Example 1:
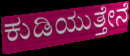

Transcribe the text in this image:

ಕುಡಿಯುತ್ತೇನೆ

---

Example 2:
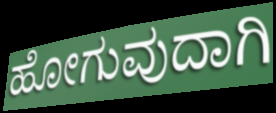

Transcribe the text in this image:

ಹೋಗುವುದಾಗಿ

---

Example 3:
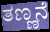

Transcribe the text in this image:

ತಣ್ಣನೆ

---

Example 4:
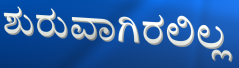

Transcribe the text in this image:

ಶುರುವಾಗಿರಲಿಲ್ಲ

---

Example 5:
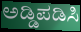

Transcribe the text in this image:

ಅಡ್ಡಿಪಡಿಸಿ